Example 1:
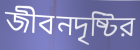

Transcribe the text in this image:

জীবনদৃষ্টির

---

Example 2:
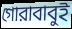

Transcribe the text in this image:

গোরাবাবুই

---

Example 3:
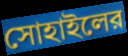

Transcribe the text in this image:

সোহাইলের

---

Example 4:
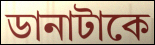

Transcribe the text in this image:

ডানাটাকে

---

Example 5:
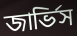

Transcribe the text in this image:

জার্ভিস